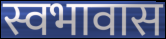
स्वभावास